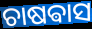
ଚାଷଵାସ